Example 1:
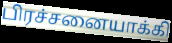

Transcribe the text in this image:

பிரச்சனையாக்கி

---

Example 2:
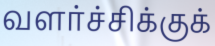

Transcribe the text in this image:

வளர்ச்சிக்குக்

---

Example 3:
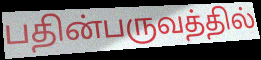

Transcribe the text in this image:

பதின்பருவத்தில்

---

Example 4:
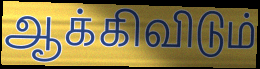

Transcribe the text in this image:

ஆக்கிவிடும்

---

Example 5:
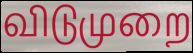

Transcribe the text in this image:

விடுமுறை